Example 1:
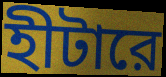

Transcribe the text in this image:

হীটারে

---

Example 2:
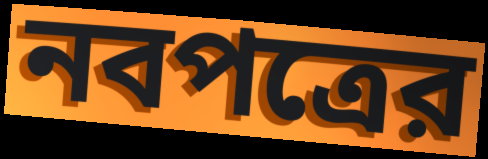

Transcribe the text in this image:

নবপত্রের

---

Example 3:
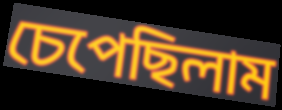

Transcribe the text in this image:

চেপেছিলাম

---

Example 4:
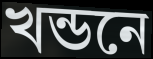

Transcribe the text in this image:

খন্ডনে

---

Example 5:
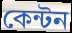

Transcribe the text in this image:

কেন্টন